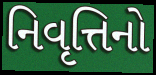
નિવૃત્તિનો